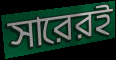
সারেরই